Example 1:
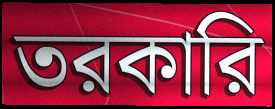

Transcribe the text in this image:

তরকারি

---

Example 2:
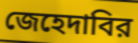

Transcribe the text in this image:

জেহেদাবির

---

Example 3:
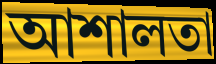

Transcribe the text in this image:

আশালতা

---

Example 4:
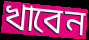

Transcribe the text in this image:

খাবেন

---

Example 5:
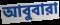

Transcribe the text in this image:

আবুবারা